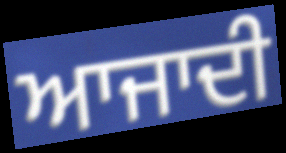
ਆਜਾਦੀ